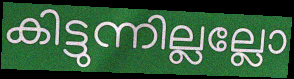
കിട്ടുന്നില്ലല്ലോ